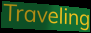
Traveling